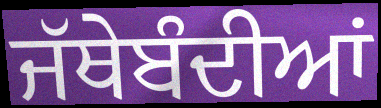
ਜੱਥੇਬੰਦੀਆਂ